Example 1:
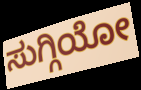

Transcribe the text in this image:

ಸುಗ್ಗಿಯೋ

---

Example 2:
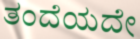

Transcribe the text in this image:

ತಂದೆಯದೇ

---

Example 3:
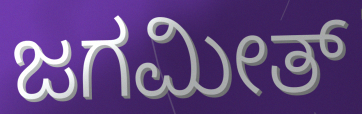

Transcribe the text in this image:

ಜಗಮೀತ್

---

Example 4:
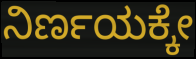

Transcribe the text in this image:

ನಿರ್ಣಯಕ್ಕೇ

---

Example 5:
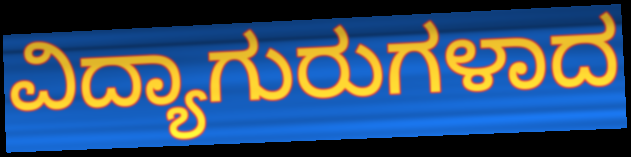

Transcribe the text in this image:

ವಿದ್ಯಾಗುರುಗಳಾದ